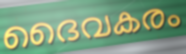
ദൈവകരം